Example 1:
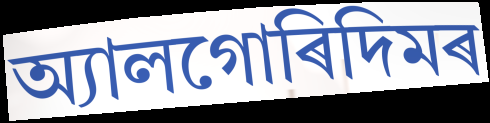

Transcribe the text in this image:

অ্যালগোৰিদিমৰ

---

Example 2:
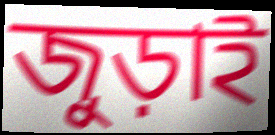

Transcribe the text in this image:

জুড়াই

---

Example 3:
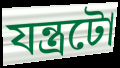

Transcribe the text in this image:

যন্ত্ৰটো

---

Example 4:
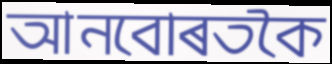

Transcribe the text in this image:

আনবোৰতকৈ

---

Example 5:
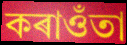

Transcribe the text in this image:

কৰাওঁতা